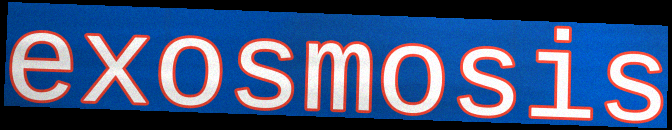
exosmosis